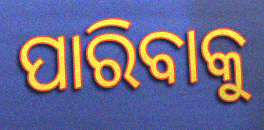
ପାରିବାକୁ